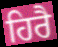
ਹਿਰੈ